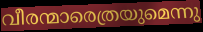
വീരന്മാരെത്രയുമെന്നു